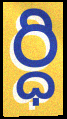
ర్ధి